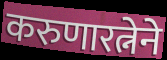
करुणारत्नेने